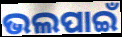
ଭଲପାଇଁ